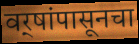
वर्षांपासूनचा